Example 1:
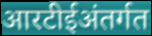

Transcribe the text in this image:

आरटीईअंतर्गत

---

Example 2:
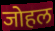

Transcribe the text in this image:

जोहल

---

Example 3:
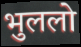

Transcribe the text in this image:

भुललो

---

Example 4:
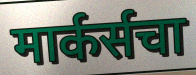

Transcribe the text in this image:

मार्कर्सचा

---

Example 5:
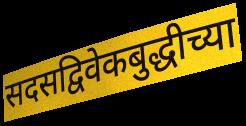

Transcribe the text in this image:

सदसद्विवेकबुद्धीच्या